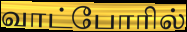
வாட்போரில்